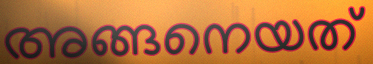
അങ്ങനെയത്